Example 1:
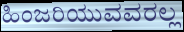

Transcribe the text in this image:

ಹಿಂಜರಿಯುವವರಲ್ಲ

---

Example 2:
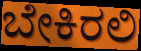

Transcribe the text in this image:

ಬೇಕಿರಲಿ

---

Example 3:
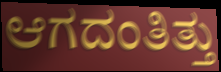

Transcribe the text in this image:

ಆಗದಂತಿತ್ತು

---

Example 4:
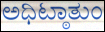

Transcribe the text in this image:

ಅಧಿಟ್ಠಾತುಂ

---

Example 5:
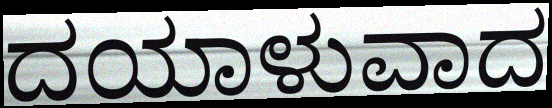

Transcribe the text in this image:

ದಯಾಳುವಾದ